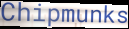
Chipmunks